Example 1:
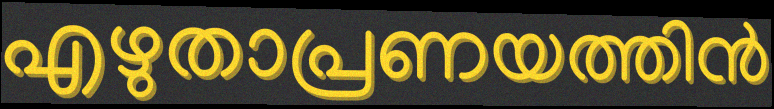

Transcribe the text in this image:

എഴുതാപ്രണയത്തിൻ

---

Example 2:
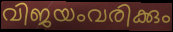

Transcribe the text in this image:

വിജയംവരിക്കും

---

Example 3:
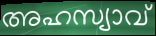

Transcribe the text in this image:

അഹസ്യാവ്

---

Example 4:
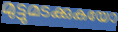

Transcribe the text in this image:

മുട്ടുമടക്കുകയോ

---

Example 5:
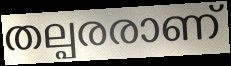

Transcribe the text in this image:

തല്പരരാണ്